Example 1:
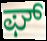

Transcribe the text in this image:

ಘ್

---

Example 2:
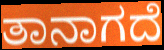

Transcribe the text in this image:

ತಾನಾಗದೆ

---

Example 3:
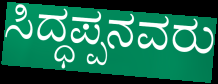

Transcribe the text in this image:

ಸಿದ್ಧಪ್ಪನವರು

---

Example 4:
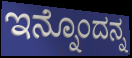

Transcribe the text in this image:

ಇನ್ನೊಂದನ್ನ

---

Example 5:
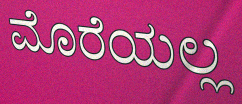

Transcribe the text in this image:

ಮೊರೆಯಲ್ಲ